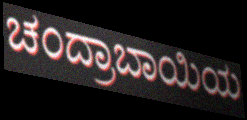
ಚಂದ್ರಾಬಾಯಿಯ